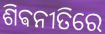
ଶିଵନୀତିରେ